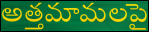
అత్తమామలపై